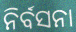
ନିର୍ବସନା